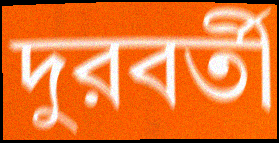
দুরবর্তী